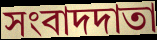
সংবাদদাতা